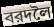
বরদলৈ